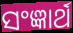
ସଂଜ୍ଞାର୍ଥ